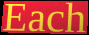
Each